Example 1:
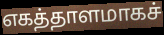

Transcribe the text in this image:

எகத்தாளமாகச்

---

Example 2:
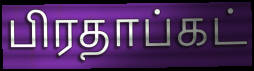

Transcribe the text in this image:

பிரதாப்கட்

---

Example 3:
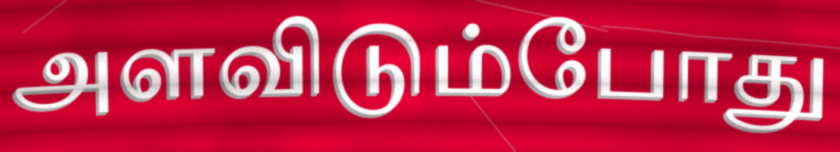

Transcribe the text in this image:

அளவிடும்போது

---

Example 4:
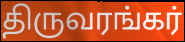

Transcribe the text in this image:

திருவரங்கர்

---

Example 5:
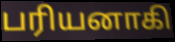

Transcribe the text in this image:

பரியனாகி